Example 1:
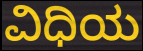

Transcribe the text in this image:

ವಿಧಿಯ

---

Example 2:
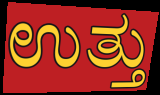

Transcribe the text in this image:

ಉತ್ತು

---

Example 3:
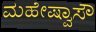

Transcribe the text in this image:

ಮಹೇಷ್ವಾಸೌ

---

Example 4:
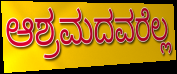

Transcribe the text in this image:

ಆಶ್ರಮದವರೆಲ್ಲ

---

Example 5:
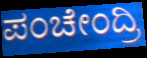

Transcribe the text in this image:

ಪಂಚೇಂದ್ರಿ